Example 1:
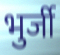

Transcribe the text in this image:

भुर्जी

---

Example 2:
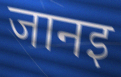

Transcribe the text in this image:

जानइ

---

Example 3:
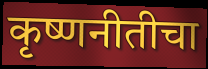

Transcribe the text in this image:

कृष्णनीतीचा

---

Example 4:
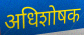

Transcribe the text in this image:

अधिशोषक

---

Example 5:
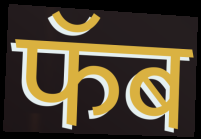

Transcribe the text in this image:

फॅब